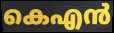
കെഎൻ